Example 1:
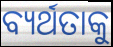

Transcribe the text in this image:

ବ୍ୟର୍ଥତାକୁ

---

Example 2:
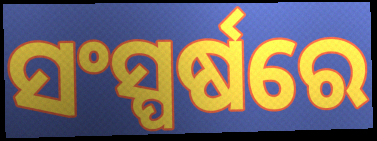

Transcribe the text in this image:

ସଂସ୍ପର୍ଷରେ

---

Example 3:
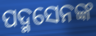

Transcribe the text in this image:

ପଦ୍ମସେନଙ୍କ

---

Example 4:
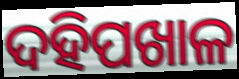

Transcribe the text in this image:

ଦହିପଖାଳ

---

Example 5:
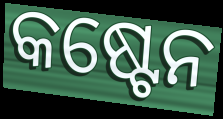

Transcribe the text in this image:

କଷ୍ଟେନ